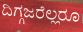
ದಿಗ್ಗಜರೆಲ್ಲರೂ